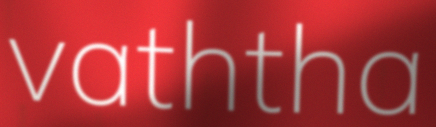
vaththa